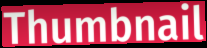
Thumbnail